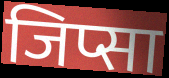
जिप्सा